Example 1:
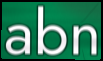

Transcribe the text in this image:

abn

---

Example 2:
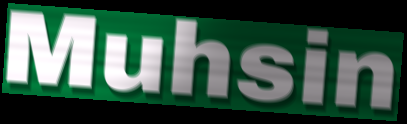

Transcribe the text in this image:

Muhsin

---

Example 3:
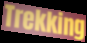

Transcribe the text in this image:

Trekking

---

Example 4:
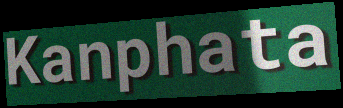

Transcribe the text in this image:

Kanphata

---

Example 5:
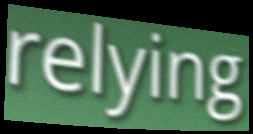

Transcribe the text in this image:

relying